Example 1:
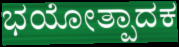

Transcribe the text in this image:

ಭಯೋತ್ಪಾದಕ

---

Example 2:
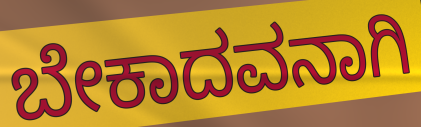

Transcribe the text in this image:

ಬೇಕಾದವನಾಗಿ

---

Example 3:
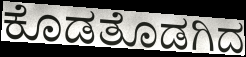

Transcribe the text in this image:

ಕೊಡತೊಡಗಿದ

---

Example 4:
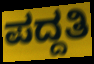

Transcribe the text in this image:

ಪದ್ದತಿ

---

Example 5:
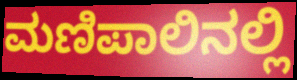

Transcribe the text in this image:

ಮಣಿಪಾಲಿನಲ್ಲಿ